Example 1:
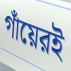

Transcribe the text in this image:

গাঁয়েরই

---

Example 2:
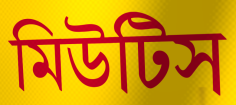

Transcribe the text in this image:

মিউটিস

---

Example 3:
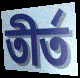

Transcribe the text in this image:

তীর্ত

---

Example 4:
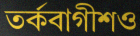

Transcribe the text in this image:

তর্কবাগীশও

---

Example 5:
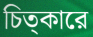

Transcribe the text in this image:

চিত্কারে